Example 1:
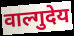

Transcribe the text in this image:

वाल्गुदेय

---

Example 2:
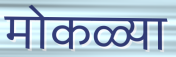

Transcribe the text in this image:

मोकळ्या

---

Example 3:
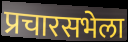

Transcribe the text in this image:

प्रचारसभेला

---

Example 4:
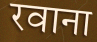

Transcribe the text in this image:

रवाना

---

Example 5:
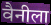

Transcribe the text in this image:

वैनीला